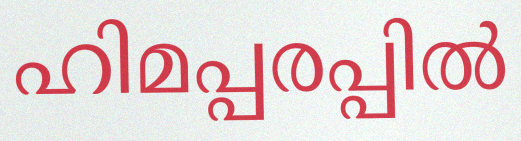
ഹിമപ്പരപ്പിൽ